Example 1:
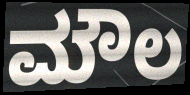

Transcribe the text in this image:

ಮೌಲ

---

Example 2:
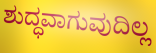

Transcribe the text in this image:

ಶುದ್ಧವಾಗುವುದಿಲ್ಲ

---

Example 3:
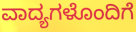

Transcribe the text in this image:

ವಾದ್ಯಗಳೊಂದಿಗೆ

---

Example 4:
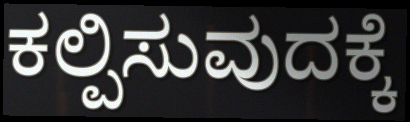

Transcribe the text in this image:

ಕಲ್ಪಿಸುವುದಕ್ಕೆ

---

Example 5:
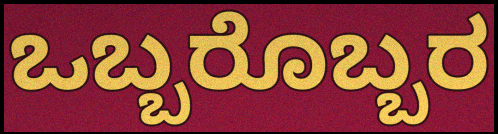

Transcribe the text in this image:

ಒಬ್ಬರೊಬ್ಬರ